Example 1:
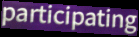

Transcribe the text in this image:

participating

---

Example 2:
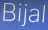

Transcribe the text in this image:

Bijal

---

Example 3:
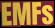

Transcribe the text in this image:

EMFs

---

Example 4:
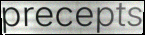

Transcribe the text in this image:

precepts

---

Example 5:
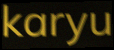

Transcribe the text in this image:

karyu